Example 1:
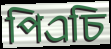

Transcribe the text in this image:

পিএচি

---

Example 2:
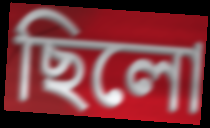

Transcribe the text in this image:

ছিলো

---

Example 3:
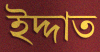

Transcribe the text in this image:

ইদ্দাত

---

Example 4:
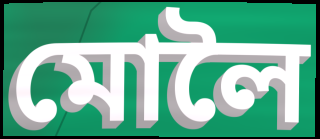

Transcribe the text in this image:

মোলৈ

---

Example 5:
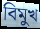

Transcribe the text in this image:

বিমুখ